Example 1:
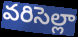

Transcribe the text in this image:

వరిసెల్లా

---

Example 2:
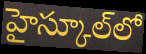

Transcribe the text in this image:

హైస్కూల్‌లో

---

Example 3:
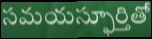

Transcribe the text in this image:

సమయస్ఫూర్తితో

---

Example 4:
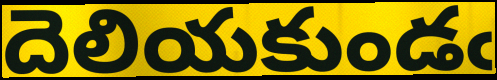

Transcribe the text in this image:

దెలియకుండఁ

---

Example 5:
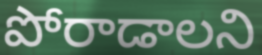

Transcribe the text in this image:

పోరాడాలని